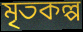
মৃতকল্প